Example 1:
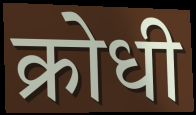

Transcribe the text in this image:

क्रोधी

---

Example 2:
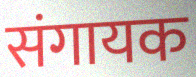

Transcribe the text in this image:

संगायक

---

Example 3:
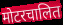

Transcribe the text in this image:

मोटरचालित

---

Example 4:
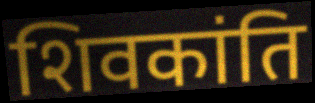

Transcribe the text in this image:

शिवकांति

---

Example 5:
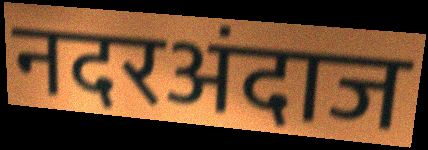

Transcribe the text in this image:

नदरअंदाज